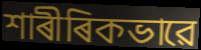
শাৰীৰিকভাৱে